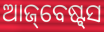
ଆଜ୍‌ବେଷ୍ଟ୍‌ସ